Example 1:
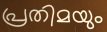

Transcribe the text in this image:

പ്രതിമയും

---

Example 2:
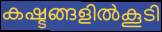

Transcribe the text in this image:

കഷ്ടങ്ങളിൽകൂടി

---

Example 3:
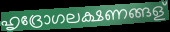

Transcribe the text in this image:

ഹൃദ്രോഗലക്ഷണങ്ങള്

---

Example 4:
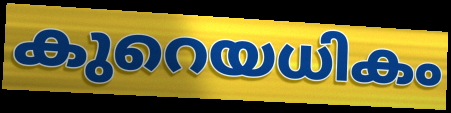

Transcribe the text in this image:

കുറെയധികം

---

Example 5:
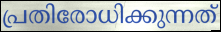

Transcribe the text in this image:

പ്രതിരോധിക്കുന്നത്